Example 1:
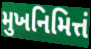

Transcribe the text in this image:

મુખનિમિત્તં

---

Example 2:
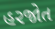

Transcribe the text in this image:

હરજોત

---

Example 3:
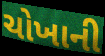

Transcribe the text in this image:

ચોખાની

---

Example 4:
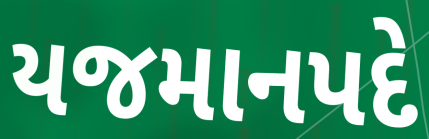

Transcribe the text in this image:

યજમાનપદે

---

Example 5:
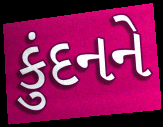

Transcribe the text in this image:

કુંદનને